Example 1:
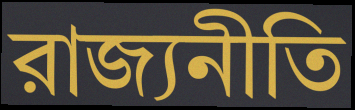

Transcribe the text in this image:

রাজ্যনীতি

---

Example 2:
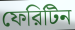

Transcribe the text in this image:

ফেরিটিন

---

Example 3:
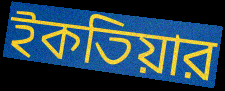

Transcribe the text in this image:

ইকতিয়ার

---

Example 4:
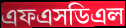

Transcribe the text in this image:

এফএসডিএল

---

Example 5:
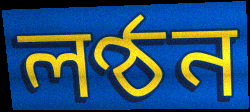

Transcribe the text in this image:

লণ্ঠন